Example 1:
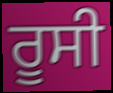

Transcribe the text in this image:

ਰੂਸੀ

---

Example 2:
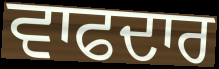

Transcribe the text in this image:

ਵਾਫਦਾਰ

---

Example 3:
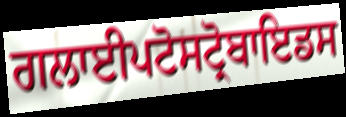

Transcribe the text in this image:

ਗਲਾਈਪਟੋਸਟ੍ਰੋਬਾਇਡਸ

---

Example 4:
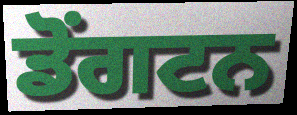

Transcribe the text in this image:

ਡੋਂਗਟਨ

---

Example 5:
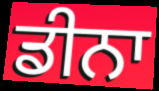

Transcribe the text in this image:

ਡੀਨਾ